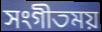
সংগীতময়